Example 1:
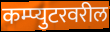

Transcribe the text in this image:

कम्प्युटरवरील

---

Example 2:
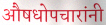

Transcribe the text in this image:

औषधोपचारांनी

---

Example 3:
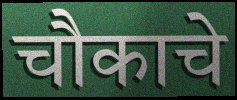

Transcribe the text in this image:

चौकाचे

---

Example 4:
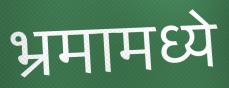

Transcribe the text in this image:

भ्रमामध्ये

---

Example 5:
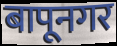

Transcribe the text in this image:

बापूनगर